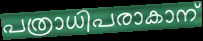
പത്രാധിപരാകാന്